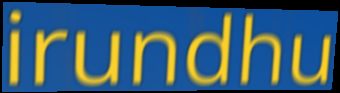
irundhu